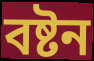
বষ্টন